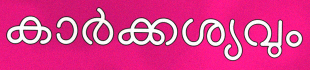
കാർക്കശ്യവും